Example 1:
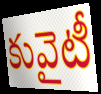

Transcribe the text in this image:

కువైటీ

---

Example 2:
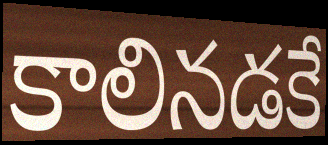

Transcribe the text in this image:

కాలినడకే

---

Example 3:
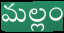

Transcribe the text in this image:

మల్లం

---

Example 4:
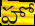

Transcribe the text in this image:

హో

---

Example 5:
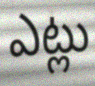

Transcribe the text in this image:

ఎట్లు